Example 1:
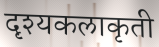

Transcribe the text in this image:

दृश्यकलाकृती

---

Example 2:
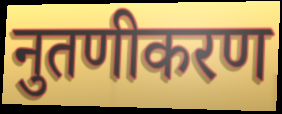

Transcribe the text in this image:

नुतणीकरण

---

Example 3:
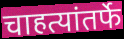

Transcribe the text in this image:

चाहत्यांतर्फे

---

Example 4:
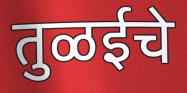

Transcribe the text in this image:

तुळईचे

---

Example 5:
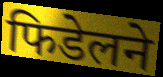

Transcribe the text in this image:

फिडेलने